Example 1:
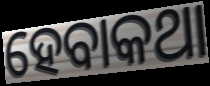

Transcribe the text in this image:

ହେବାକଥା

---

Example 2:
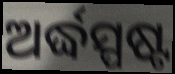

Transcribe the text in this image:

ଅର୍ଦ୍ଧସ୍ପଷ୍ଟ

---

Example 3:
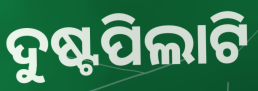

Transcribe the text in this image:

ଦୁଷ୍ଟପିଲାଟି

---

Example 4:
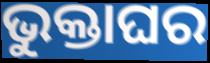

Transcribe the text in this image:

ଭୁକ୍ତାଘର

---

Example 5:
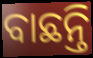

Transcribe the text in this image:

ବାଛନ୍ତି